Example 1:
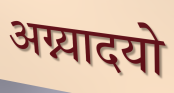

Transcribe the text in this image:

अग्न्यादयो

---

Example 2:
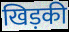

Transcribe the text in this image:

खिड़की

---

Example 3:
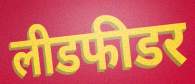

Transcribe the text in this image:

लीडफीडर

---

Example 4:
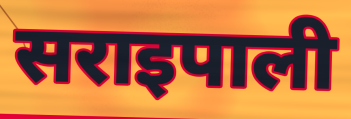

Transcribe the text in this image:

सराइपाली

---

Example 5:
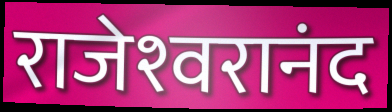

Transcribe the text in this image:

राजेश्वरानंद